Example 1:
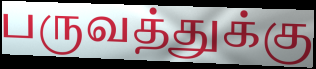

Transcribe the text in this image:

பருவத்துக்கு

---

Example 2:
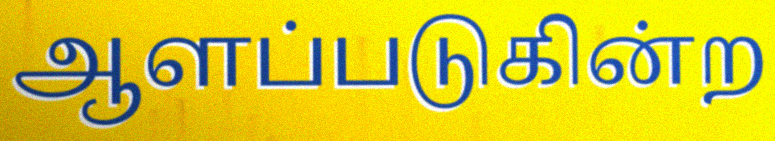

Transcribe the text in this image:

ஆளப்படுகின்ற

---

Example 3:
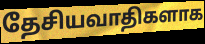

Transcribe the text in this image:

தேசியவாதிகளாக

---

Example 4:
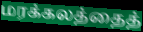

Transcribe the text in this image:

மரக்கலத்தைத்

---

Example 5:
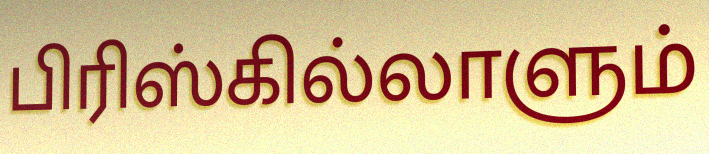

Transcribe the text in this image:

பிரிஸ்கில்லாளும்